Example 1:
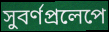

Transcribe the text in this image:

সুবর্ণপ্রলেপে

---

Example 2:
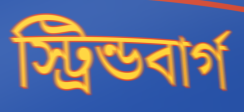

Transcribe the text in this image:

স্ট্রিন্ডবার্গ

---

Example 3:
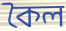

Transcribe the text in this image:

কৈল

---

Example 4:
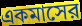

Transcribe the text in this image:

একমাসের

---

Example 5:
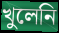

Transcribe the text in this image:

খুলেনি